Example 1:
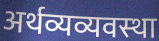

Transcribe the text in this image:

अर्थव्यव्यवस्था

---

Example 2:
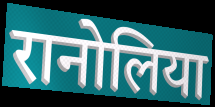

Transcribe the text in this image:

रानोलिया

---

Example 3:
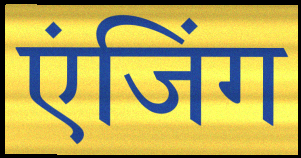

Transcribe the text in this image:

एंजिंग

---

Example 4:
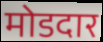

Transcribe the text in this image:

मोडदार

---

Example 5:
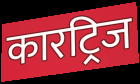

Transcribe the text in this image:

कारट्रिज